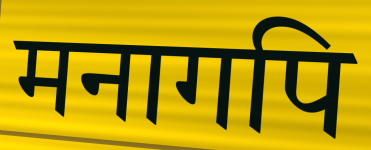
मनागपि